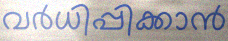
വർധിപ്പിക്കാൻ